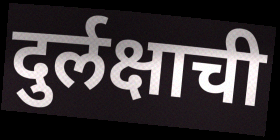
दुर्लक्षाची